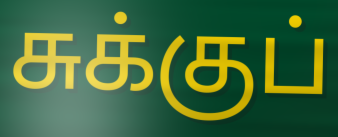
சுக்குப்